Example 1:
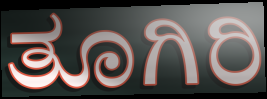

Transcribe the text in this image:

ತೂಗಿರಿ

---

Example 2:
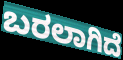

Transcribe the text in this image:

ಬರಲಾಗಿದೆ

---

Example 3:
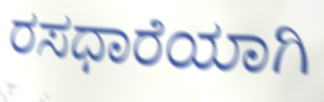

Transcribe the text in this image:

ರಸಧಾರೆಯಾಗಿ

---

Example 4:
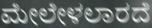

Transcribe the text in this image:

ಮೇಲೇಳಲಾರದೆ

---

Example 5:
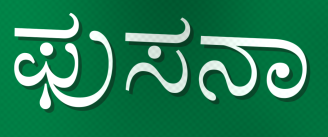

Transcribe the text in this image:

ಫುಸನಾ